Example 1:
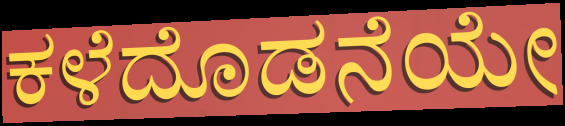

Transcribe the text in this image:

ಕಳೆದೊಡನೆಯೇ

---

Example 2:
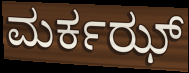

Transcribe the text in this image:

ಮರ್ಕಝ್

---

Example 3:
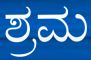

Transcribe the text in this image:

ಶ್ರಮ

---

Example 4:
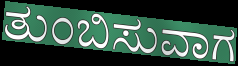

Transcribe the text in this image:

ತುಂಬಿಸುವಾಗ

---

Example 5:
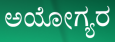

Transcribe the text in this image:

ಅಯೋಗ್ಯರ